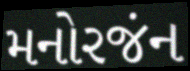
મનોરજંન